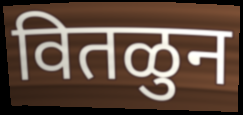
वितळुन